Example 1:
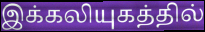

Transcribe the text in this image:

இக்கலியுகத்தில்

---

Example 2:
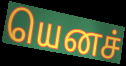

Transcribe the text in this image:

யெனச்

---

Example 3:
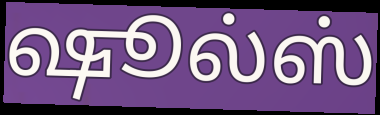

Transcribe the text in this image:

ஷூல்ஸ்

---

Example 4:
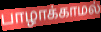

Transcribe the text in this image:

பாழாக்காமல்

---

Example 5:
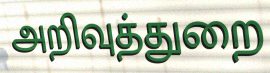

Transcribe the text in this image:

அறிவுத்துறை